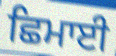
ਛਿਮਾਈ